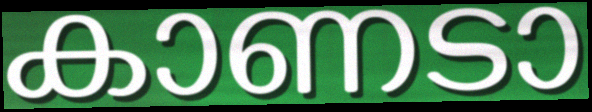
കാണടാ